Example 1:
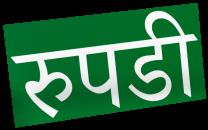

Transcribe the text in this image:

रुपडी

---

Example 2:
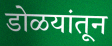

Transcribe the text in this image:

डोळयांतून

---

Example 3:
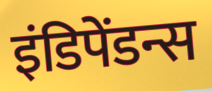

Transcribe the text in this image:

इंडिपेंडन्स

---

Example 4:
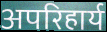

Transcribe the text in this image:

अपरिहार्य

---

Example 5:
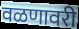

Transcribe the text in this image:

वळणावरी